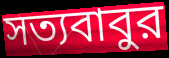
সত্যবাবুর